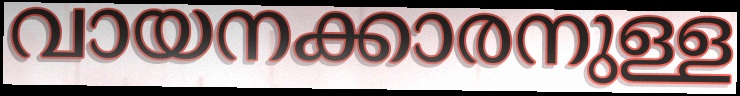
വായനക്കാരനുള്ള